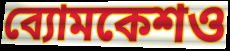
ব্যোমকেশও